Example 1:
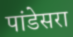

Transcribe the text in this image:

पांडेसरा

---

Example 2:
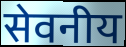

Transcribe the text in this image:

सेवनीय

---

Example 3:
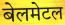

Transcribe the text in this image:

बेलमेटल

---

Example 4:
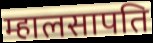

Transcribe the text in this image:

म्हालसापति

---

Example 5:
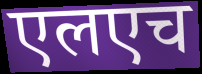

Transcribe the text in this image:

एलएच